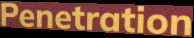
Penetration